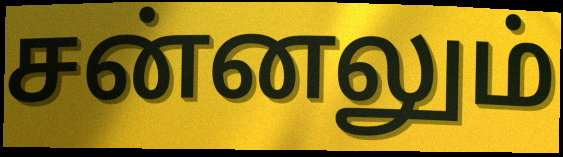
சன்னலும்